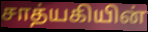
சாத்யகியின்